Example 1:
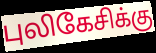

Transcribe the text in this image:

புலிகேசிக்கு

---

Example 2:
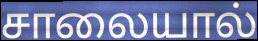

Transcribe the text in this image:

சாலையால்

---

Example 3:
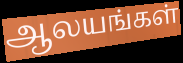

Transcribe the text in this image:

ஆலயங்கள்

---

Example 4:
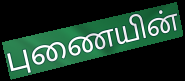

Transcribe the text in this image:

புணையின்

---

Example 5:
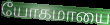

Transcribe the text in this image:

யோகமாயை